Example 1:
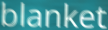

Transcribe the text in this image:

blanket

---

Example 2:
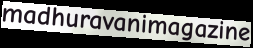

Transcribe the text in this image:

madhuravanimagazine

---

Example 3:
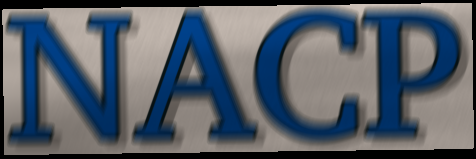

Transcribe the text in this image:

NACP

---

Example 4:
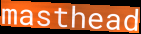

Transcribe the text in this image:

masthead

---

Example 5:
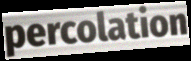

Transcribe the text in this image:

percolation